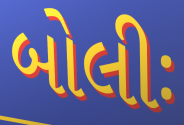
બોલીઃ